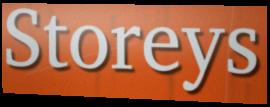
Storeys